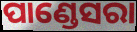
ପାଣ୍ଡେସରା